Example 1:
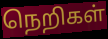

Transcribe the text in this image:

நெறிகள்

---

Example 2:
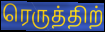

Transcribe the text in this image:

ரெருத்திற்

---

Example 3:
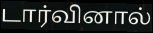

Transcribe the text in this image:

டார்வினால்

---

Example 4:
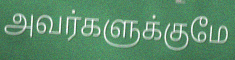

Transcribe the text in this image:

அவர்களுக்குமே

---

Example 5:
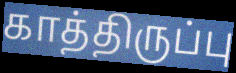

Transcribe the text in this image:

காத்திருப்பு